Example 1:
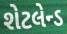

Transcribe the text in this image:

શેટલેન્ડ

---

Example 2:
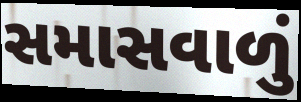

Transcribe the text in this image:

સમાસવાળું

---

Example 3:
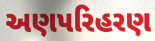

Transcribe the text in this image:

અણપરિહરણ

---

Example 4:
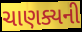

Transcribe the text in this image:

ચાણક્યની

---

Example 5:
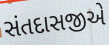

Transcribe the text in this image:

સંતદાસજીએ